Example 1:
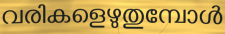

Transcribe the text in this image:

വരികളെഴുതുമ്പോൾ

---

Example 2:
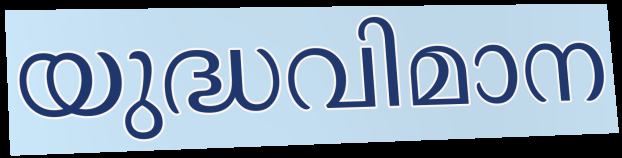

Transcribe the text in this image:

യുദ്ധവിമാന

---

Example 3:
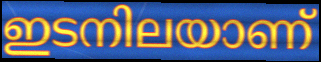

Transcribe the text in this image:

ഇടനിലയാണ്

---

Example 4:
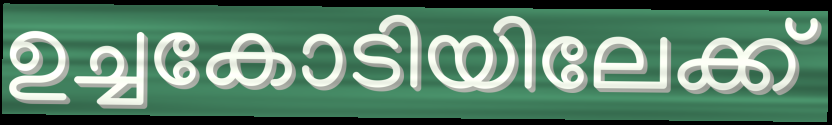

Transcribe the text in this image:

ഉച്ചകോടിയിലേക്ക്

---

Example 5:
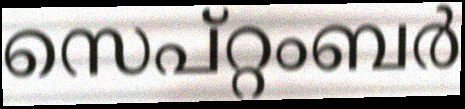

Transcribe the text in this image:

സെപ്റ്റംബർ